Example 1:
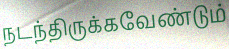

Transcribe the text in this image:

நடந்திருக்கவேண்டும்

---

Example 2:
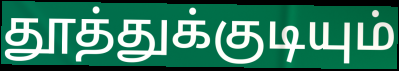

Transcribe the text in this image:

தூத்துக்குடியும்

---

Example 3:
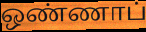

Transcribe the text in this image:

ஒண்ணாப்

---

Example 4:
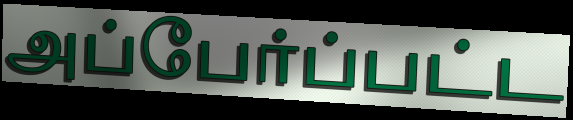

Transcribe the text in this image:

அப்பேர்ப்பட்ட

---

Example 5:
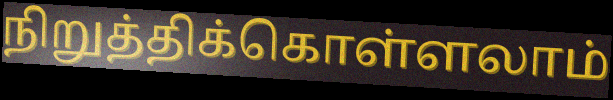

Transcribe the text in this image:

நிறுத்திக்கொள்ளலாம்